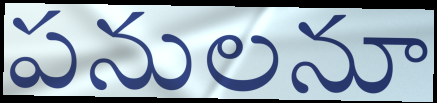
పనులనూ